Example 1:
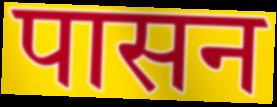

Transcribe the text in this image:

पासन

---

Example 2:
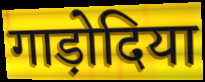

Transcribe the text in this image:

गाड़ोदिया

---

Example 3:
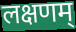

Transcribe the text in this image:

लक्षणम्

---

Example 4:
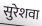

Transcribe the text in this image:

सुरेशवा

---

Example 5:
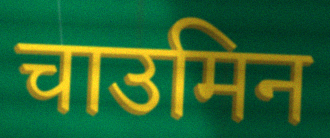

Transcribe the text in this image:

चाउमिन